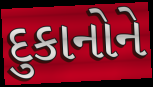
દુકાનોને